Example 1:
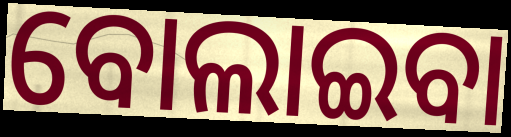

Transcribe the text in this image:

ବୋଲାଇବା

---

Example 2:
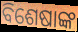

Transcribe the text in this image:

ବିଶେଷାଙ୍କ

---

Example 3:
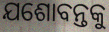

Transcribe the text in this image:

ଯଶୋବନ୍ତକୁ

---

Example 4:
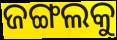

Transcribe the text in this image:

ଜଙ୍ଗଲକୁ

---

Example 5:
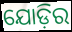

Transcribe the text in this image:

ଯୋଡ଼ିର